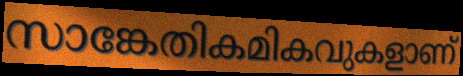
സാങ്കേതികമികവുകളാണ്